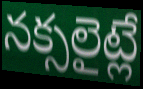
నక్సలైట్లే